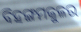
ବିହଙ୍ଗମକୁଳର